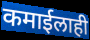
कमाईलाही